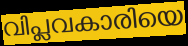
വിപ്ലവകാരിയെ